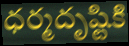
ధర్మదృష్టికి